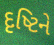
દૃષ્ટિને